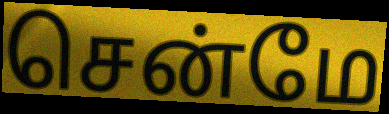
சென்மே